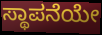
ಸ್ಥಾಪನೆಯೇ